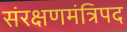
संरक्षणमंत्रिपद